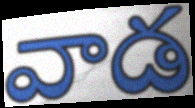
వాడ